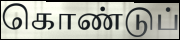
கொண்டுப்